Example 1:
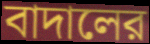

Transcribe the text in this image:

বাদালের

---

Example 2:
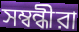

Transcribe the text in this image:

সম্বন্ধীরা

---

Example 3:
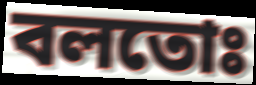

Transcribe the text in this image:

বলতোঃ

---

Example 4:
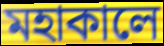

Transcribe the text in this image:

মহাকালে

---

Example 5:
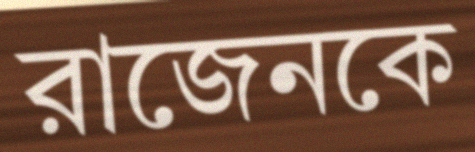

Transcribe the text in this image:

রাজেনকে